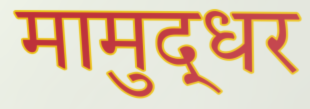
मामुद्धर